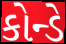
કોન્ડે